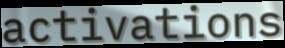
activations